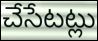
చేసేటట్లు